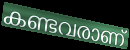
കണ്ടവരാണ്